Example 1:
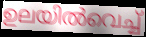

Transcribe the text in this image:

ഉലയിൽവെച്ച്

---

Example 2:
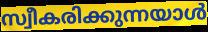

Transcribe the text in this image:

സ്വീകരിക്കുന്നയാൾ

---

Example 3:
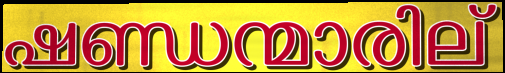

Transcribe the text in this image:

ഷണ്ഡന്മാരില്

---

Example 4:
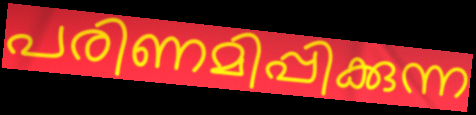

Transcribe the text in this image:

പരിണമിപ്പിക്കുന്ന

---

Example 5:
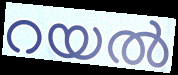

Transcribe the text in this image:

റയൽ